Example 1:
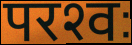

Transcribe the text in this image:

परश्वः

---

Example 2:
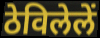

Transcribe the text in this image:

ठेविलेलें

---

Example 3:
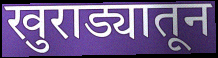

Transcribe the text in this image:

खुराड्यातून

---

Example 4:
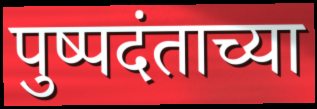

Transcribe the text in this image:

पुष्पदंताच्या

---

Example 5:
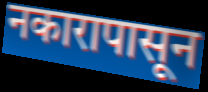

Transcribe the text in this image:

नकारापासून